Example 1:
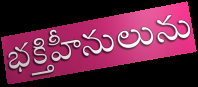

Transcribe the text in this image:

భక్తిహీనులును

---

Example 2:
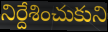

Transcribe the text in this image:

నిర్దేశించుకుని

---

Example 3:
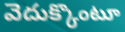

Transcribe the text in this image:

వెదుక్కొంటూ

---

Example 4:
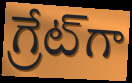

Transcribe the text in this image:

గ్రేట్‌గా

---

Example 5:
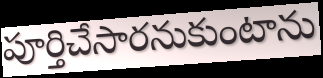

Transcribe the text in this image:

పూర్తిచేసారనుకుంటాను